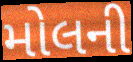
મોલની